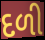
દળી